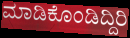
ಮಾಡಿಕೊಂಡಿದ್ದಿರಿ